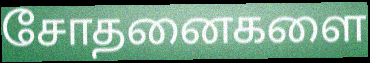
சோதனைகளை